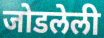
जोडलेली